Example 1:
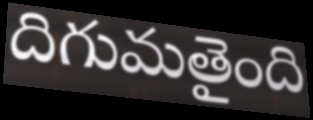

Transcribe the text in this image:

దిగుమతైంది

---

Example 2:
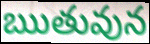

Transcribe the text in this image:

ఋతువున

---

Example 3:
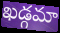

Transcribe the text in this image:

ఖడ్గమా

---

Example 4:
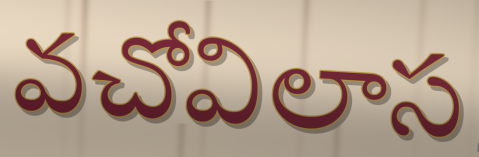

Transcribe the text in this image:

వచోవిలాస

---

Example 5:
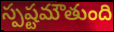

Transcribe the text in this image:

స్పష్టమౌతుంది